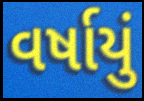
વર્ષાયું